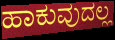
ಹಾಕುವುದಲ್ಲ